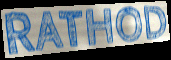
RATHOD